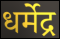
धर्मेद्र